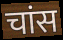
चांस